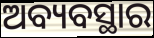
ଅବ୍ୟବସ୍ଥାର